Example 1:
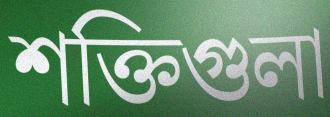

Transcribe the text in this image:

শক্তিগুলা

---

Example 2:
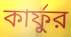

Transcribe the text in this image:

কার্ফুর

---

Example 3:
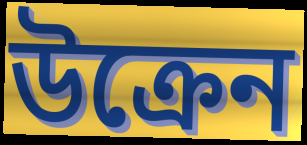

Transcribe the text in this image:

উক্রেন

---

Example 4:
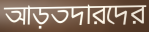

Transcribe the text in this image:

আড়তদারদের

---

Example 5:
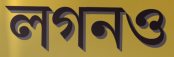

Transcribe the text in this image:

লগনও